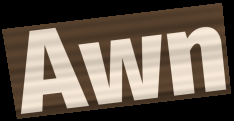
Awn